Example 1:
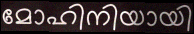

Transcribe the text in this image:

മോഹിനിയായി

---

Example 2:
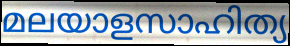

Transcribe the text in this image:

മലയാളസാഹിത്യ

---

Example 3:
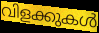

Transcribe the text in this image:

വിളക്കുകൾ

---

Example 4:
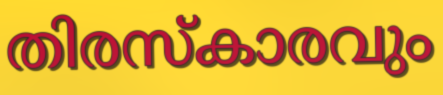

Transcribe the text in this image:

തിരസ്കാരവും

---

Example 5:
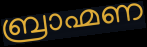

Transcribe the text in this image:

ബ്രാഹ്മണ